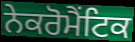
ਨੇਕਰੋਮੈਂਟਿਕ